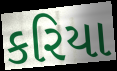
કરિયા